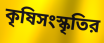
কৃষিসংস্কৃতির